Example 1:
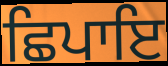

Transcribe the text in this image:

ਛਿਪਾਇ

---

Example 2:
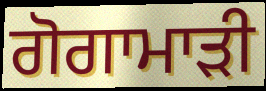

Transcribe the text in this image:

ਗੋਗਾਮਾੜੀ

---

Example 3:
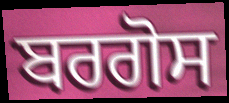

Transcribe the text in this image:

ਬਰਗੋਸ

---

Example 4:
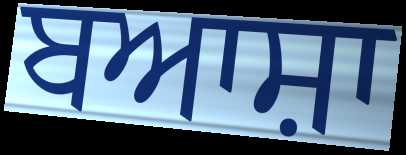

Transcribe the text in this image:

ਬਆਸ਼ਾ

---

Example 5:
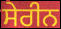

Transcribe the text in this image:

ਸੇਰੀਨ